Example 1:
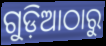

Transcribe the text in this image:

ଗୁଡ଼ିଆଠାରୁ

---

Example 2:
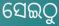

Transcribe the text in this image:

ସେଇଠୁ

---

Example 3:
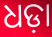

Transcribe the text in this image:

ଧଡ଼ା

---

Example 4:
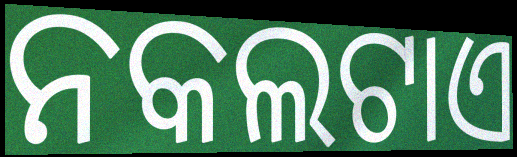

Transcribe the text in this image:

ନକଲଟାଏ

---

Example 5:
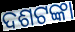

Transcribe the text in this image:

ଦଶଟଙ୍କା